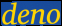
deno